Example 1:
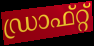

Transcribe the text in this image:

ഡ്രാഫ്റ്റ്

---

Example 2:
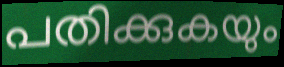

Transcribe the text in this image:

പതിക്കുകയും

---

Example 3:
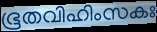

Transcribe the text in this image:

ഭൂതവിഹിംസകഃ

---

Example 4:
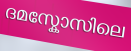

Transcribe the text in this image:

ദമസ്കോസിലെ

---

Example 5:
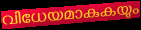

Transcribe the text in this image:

വിധേയമാകുകയും